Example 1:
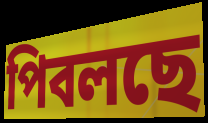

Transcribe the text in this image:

পিবলছে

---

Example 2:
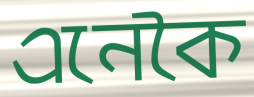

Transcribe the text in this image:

এনেকৈ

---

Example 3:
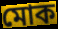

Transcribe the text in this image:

মোক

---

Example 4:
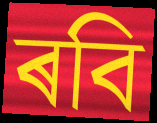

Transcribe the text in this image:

ৰবি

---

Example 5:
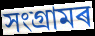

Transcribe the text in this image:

সংগ্ৰামৰ